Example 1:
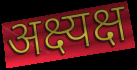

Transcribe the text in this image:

अक्ष्यक्ष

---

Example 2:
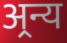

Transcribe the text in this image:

अ्रन्य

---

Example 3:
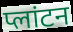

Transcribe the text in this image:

प्लांटन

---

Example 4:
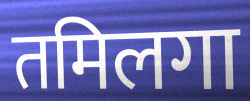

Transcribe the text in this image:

तमिलगा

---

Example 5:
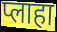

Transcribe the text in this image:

प्लाहा